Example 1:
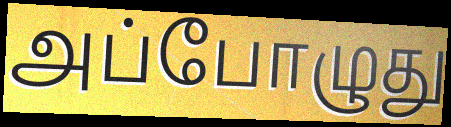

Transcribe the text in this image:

அப்போழுது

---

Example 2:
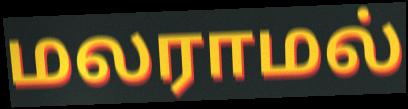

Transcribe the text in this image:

மலராமல்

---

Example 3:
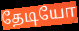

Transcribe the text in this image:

தேடியோ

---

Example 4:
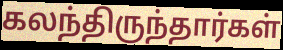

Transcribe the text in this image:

கலந்திருந்தார்கள்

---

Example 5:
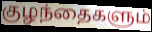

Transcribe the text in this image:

குழந்தைகளும்